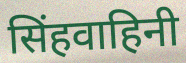
सिंहवाहिनी